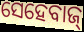
ସେହେବାଜ୍